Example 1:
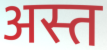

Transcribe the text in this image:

अस्त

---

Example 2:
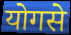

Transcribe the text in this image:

योगसे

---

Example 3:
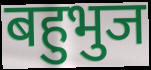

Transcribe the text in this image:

बहुभुज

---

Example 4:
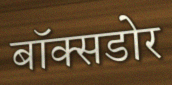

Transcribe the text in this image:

बॉक्सडोर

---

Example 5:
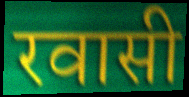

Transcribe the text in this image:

रवासी